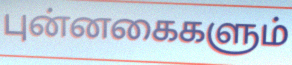
புன்னகைகளும்